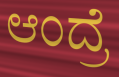
ಆಂದ್ರೆ